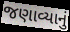
જણાવ્યાનું